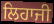
ਲਿਹਾਜੀ